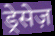
ड्रेसेज़